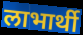
लाभार्थी